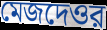
মেজদেওর